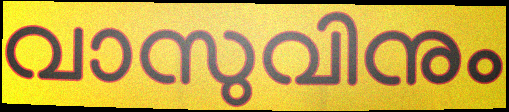
വാസുവിനും